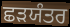
ਛੜਯੰਤਰ